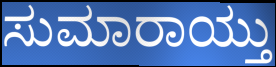
ಸುಮಾರಾಯ್ತು